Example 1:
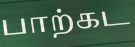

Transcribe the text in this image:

பாற்கட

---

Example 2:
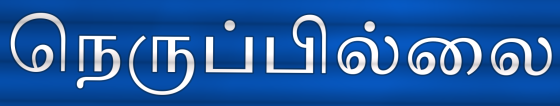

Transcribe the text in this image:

நெருப்பில்லை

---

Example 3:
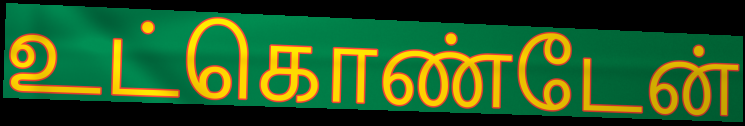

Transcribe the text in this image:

உட்கொண்டேன்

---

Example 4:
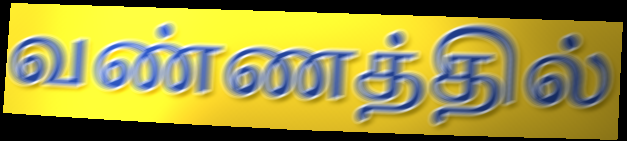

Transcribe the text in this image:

வண்ணத்தில்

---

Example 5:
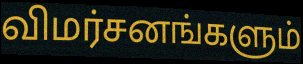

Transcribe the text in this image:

விமர்சனங்களும்